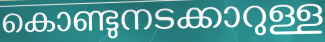
കൊണ്ടുനടക്കാറുള്ള